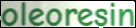
oleoresin